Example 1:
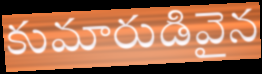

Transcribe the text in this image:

కుమారుడివైన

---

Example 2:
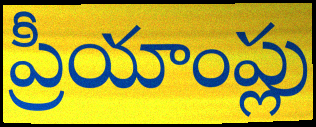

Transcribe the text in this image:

ప్రీయాంప్లు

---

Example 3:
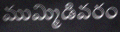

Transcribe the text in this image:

ముమ్మిడివరం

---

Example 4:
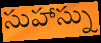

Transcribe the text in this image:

సుహాస్ను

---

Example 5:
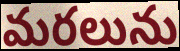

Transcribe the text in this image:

మరలును